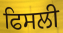
ਫਿਸਲੀ